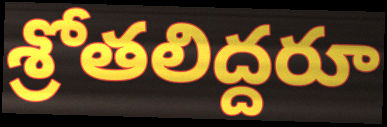
శ్రోతలిద్దరూ